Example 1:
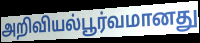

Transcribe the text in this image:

அறிவியல்பூர்வமானது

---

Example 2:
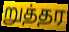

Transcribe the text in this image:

றுத்தர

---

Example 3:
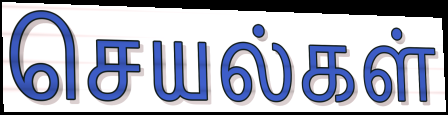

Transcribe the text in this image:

செயல்கள்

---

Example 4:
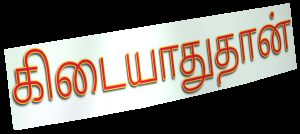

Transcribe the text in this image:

கிடையாதுதான்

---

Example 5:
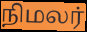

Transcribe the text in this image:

நிமலர்